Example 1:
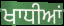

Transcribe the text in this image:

ਖਾਧੀਆਂ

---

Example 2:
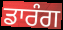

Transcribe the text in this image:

ਡਾਰੰਗ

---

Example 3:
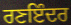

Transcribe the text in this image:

ਰਣਇੰਦਰ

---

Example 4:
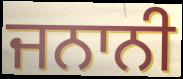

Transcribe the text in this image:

ਜਨਾਨੀ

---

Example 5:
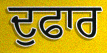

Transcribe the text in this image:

ਦੁਫਾਰ